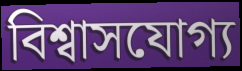
বিশ্বাসযোগ্য